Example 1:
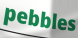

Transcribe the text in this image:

pebbles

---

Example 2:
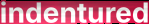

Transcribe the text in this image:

indentured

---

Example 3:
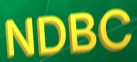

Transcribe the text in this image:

NDBC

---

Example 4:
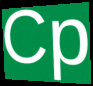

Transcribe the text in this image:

Cp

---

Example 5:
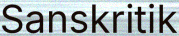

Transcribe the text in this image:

Sanskritik